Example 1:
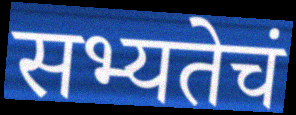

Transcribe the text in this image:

सभ्यतेचं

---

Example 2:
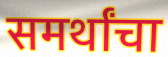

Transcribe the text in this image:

समर्थांचा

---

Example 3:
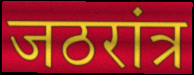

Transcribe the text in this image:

जठरांत्र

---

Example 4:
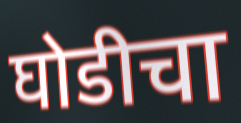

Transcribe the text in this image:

घोडीचा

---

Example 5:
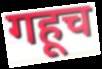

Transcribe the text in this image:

गहूच